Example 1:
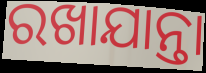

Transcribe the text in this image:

ରଖାଯାନ୍ତା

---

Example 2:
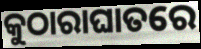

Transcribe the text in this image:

କୁଠାରାଘାତରେ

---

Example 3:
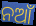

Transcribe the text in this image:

ନଆଁ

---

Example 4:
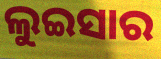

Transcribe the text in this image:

ଲୁଇସାର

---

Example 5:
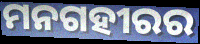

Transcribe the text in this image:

ମନଗହୀରର